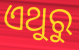
ଏଥୁରୁ